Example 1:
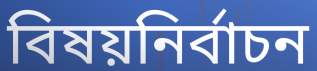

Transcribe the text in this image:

বিষয়নির্বাচন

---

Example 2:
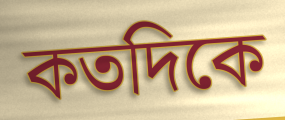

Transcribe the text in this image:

কতদিকে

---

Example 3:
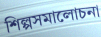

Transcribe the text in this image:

শিল্পসমালোচনা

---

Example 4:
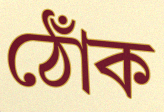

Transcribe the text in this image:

ঠোঁক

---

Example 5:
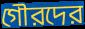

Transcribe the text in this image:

গৌরদের